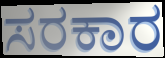
ಸರಕಾರ